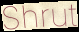
Shrut